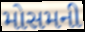
મોસમની